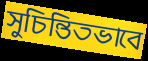
সুচিন্তিতভাবে